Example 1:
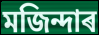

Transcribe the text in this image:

মজিন্দাৰ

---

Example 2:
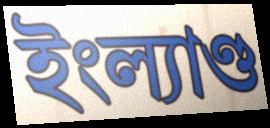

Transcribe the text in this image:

ইংল্যাণ্ড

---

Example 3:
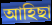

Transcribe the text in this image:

আহিছা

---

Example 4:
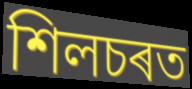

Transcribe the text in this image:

শিলচৰত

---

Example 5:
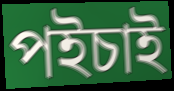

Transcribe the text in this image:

পইচাই